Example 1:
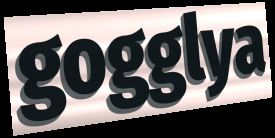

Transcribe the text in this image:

gogglya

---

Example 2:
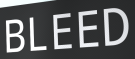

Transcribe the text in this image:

BLEED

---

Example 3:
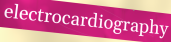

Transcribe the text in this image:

electrocardiography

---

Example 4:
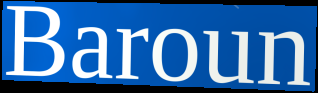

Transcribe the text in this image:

Baroun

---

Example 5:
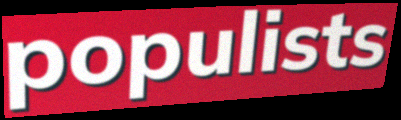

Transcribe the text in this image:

populists